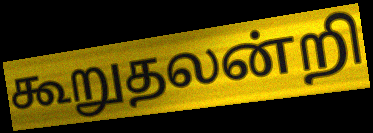
கூறுதலன்றி